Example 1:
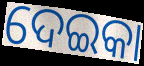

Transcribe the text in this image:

ଦେଇକା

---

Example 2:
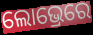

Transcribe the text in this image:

ଲୋଭ୍ରେରେ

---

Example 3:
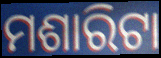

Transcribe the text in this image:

ମଶାରିଟା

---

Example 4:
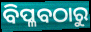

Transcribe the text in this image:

ବିପ୍ଳବଠାରୁ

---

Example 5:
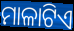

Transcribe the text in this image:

ମାଳାଟିଏ